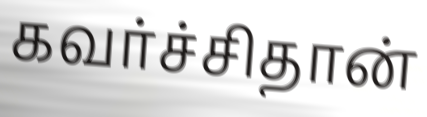
கவர்ச்சிதான்